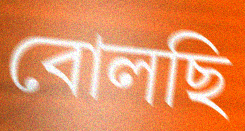
বোলছি